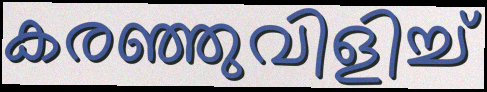
കരഞ്ഞുവിളിച്ച്